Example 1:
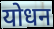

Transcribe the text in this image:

योधन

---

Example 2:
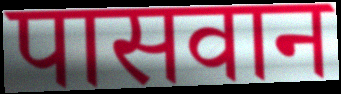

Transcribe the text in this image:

पासवान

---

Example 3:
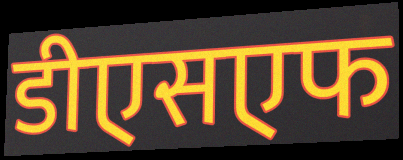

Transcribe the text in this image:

डीएसएफ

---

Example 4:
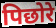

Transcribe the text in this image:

पिछोरे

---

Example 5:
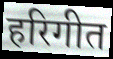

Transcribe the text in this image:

हरिगीत